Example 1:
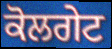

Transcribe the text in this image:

ਕੋਲਗੇਟ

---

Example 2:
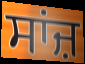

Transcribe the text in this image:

ਸਾਂਜ਼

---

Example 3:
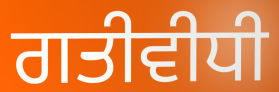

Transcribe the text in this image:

ਗਤੀਵੀਧੀ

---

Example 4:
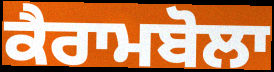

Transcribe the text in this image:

ਕੈਰਾਮਬੋਲਾ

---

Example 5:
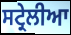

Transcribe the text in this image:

ਸਟ੍ਰੇਲੀਆ